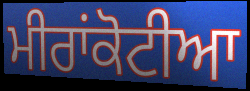
ਮੀਰਾਂਕੋਟੀਆ